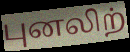
புனலிற்